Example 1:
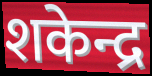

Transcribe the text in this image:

शकेन्द्र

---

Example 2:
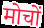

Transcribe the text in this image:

मोचों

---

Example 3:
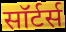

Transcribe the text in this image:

सॉर्टर्स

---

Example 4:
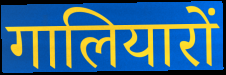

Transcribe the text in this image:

गालियारों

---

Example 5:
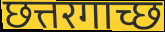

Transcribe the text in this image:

छत्तरगाच्छ